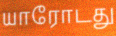
யாரோடது